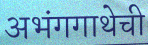
अभंगगाथेची